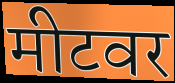
मीटवर